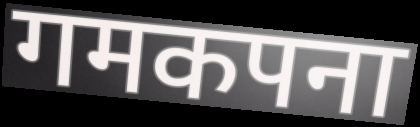
गमकपना